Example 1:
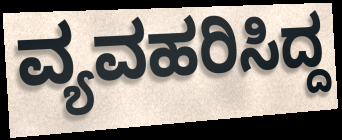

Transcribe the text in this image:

ವ್ಯವಹರಿಸಿದ್ದ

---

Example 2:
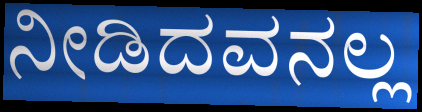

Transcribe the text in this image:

ನೀಡಿದವನಲ್ಲ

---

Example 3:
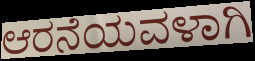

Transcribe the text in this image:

ಆರನೆಯವಳಾಗಿ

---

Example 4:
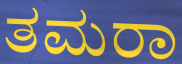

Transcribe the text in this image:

ತಮರಾ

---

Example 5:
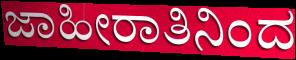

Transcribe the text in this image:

ಜಾಹೀರಾತಿನಿಂದ